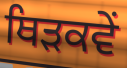
ਥਿੜਕਵੇਂ